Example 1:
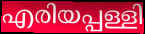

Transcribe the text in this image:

എരിയപ്പള്ളി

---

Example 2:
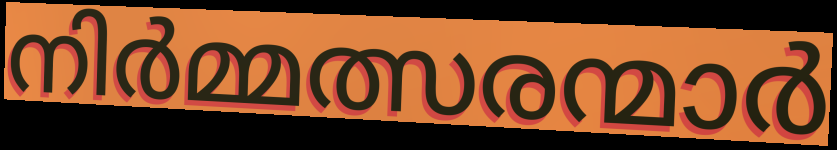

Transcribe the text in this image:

നിർമ്മത്സരന്മാർ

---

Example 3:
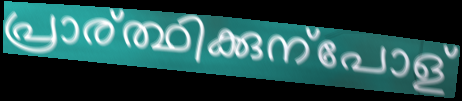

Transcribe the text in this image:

പ്രാര്ത്ഥിക്കുന്പോള്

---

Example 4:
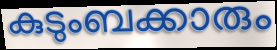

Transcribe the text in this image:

കുടുംബക്കാരും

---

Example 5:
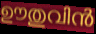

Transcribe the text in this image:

ഊതുവിൻ